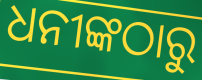
ଧନୀଙ୍କଠାରୁ